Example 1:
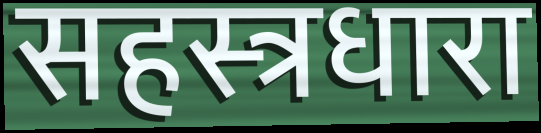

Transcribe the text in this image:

सहस्त्रधारा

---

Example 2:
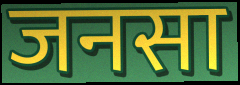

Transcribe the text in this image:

जनसा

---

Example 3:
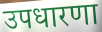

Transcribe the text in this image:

उपधारणा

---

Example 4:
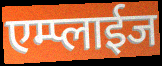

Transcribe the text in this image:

एम्प्लाईज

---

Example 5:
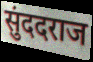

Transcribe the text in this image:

सुंददराज